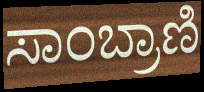
ಸಾಂಬ್ರಾಣಿ